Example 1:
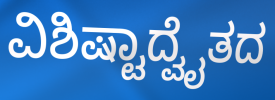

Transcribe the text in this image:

ವಿಶಿಷ್ಟಾದ್ವೈತದ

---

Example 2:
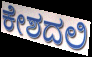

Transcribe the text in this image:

ಕೇಶದಲಿ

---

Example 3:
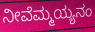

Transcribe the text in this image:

ನೀವೆಮ್ಮಯ್ಯನಂ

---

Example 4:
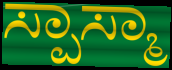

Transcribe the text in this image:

ಸ್ಪಾಸ್ಮಾ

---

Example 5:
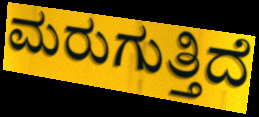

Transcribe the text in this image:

ಮರುಗುತ್ತಿದೆ